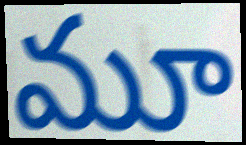
మూ